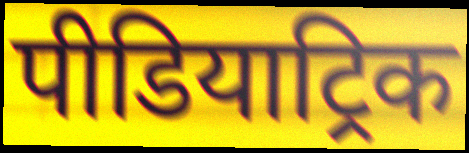
पीडियाट्रिक